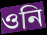
ওনি